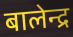
बालेन्द्र